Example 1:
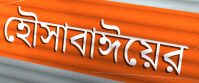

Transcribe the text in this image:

হৌসাবাঈয়ের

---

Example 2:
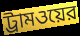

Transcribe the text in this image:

ট্রামওয়ের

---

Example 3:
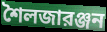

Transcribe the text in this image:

শৈলজারঞ্জন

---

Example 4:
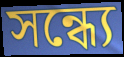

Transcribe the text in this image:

সন্ধ্যে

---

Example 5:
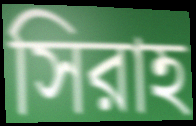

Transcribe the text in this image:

সিরাহ